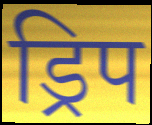
ड्रिप